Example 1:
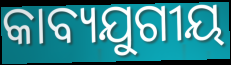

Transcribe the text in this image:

କାବ୍ୟଯୁଗୀୟ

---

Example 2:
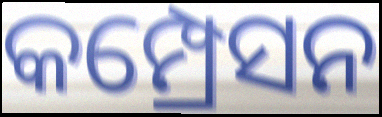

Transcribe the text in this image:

କମ୍ପ୍ରେସନ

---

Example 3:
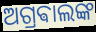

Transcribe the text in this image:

ଅଗ୍ରଵାଲଙ୍କ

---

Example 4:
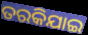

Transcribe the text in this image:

ତରକିଯାଇ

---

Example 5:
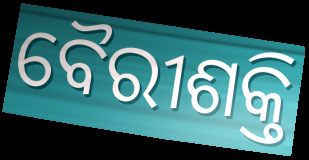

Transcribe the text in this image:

ବୈରୀଶକ୍ତି